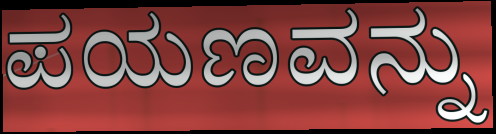
ಪಯಣವನ್ನು